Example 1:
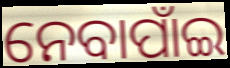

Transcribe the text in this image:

ନେବାପାଁଇ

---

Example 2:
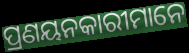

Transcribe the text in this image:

ପ୍ରଣୟନକାରୀମାନେ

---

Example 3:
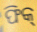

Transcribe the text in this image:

ଫିକ୍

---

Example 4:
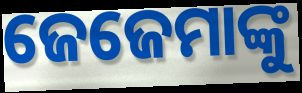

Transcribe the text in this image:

ଜେଜେମାଙ୍କୁ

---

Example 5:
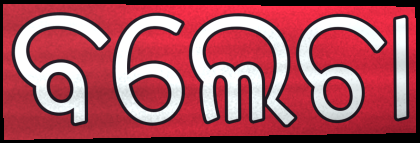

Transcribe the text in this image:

ବଲେଚା